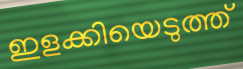
ഇളക്കിയെടുത്ത്